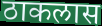
ठाकलास